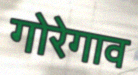
गोरेगाव